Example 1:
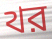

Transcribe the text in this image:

থর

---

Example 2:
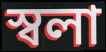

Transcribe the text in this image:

স্বলা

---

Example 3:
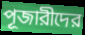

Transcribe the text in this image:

পূজারীদের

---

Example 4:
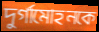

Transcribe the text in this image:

দুর্গামোহনকে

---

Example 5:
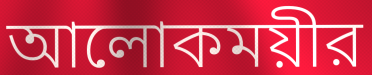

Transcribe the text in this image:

আলোকময়ীর